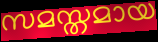
സമസ്തമായ